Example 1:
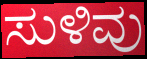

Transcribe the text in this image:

ಸುಳಿವು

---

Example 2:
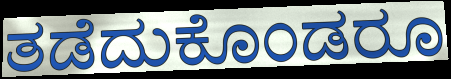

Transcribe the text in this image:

ತಡೆದುಕೊಂಡರೂ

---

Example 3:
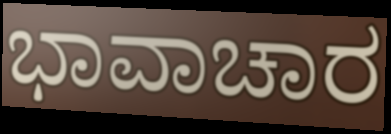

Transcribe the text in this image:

ಭಾವಾಚಾರ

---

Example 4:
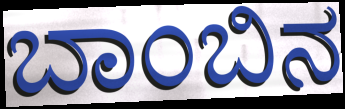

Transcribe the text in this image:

ಬಾಂಬಿನ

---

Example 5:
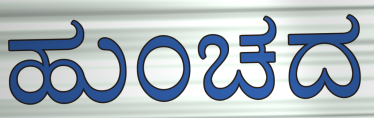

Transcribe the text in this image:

ಹುಂಚದ